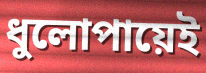
ধুলোপায়েই